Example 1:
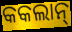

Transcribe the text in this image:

କକଲାନ୍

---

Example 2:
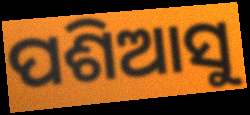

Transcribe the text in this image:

ପଶିଆସୁ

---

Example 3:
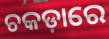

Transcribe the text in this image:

ଚକଡ଼ାରେ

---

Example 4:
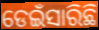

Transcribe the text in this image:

ଡେଇଁସାରିଛି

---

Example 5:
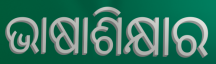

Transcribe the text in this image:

ଭାଷାଶିକ୍ଷାର